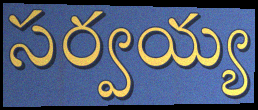
సర్వయ్య